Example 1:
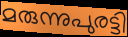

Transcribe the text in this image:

മരുന്നുപുരട്ടി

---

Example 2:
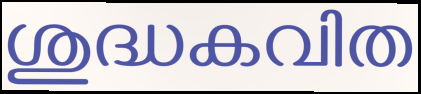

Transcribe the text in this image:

ശുദ്ധകവിത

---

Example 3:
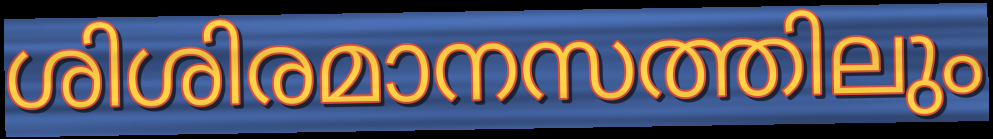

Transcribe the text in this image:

ശിശിരമാനസത്തിലും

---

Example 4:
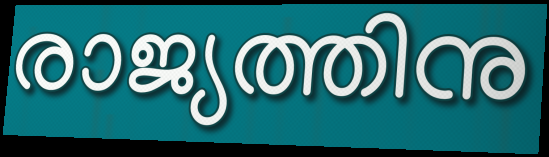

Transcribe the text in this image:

രാജ്യത്തിനു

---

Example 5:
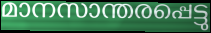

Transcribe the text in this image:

മാനസാന്തരപ്പെട്ടു